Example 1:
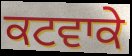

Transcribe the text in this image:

ਕਟਵਾਕੇ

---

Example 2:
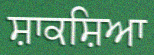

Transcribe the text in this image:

ਸ਼ਾਕਸ਼ਿਆ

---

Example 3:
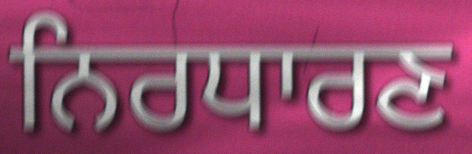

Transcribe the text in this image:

ਨਿਰਧਾਰਣ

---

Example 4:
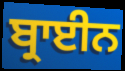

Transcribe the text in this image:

ਬ੍ਰਾਈਨ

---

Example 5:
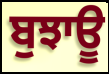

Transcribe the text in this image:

ਬੁਝਾਊ